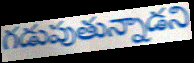
గడుపుతున్నాడని